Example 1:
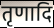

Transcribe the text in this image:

तृणादि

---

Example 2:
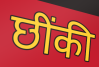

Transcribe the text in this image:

छींकी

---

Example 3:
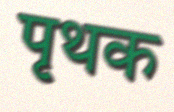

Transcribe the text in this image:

पृथक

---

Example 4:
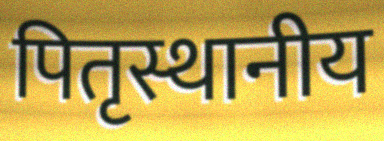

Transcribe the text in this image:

पितृस्थानीय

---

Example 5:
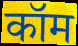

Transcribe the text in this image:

कॉम